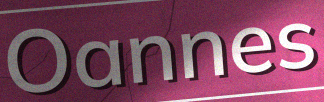
Oannes